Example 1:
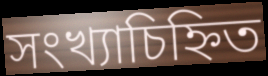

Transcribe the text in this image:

সংখ্যাচিহ্নিত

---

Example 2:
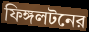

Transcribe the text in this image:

ফিঙ্গলটনের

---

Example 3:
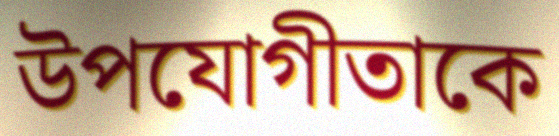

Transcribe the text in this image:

উপযোগীতাকে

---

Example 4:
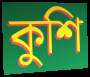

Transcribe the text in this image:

কুশি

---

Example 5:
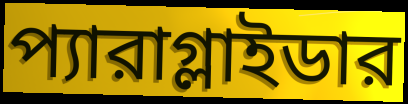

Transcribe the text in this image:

প্যারাগ্লাইডার